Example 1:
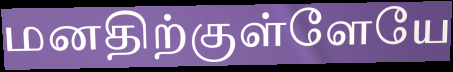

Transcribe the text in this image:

மனதிற்குள்ளேயே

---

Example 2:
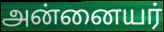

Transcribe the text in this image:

அன்னையர்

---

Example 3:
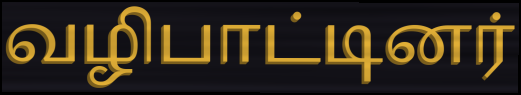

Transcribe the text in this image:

வழிபாட்டினர்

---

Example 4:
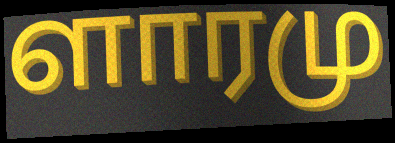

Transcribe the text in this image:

ளாரமு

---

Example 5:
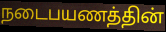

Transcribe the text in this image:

நடைபயணத்தின்